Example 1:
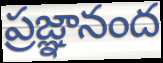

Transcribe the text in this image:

ప్రజ్ఞానంద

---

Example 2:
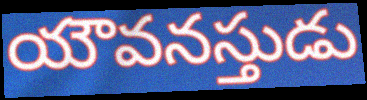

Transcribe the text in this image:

యౌవనస్తుడు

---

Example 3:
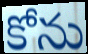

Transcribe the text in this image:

కోను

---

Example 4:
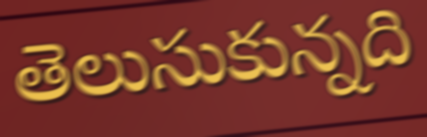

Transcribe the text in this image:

తెలుసుకున్నది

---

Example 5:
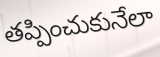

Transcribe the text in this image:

తప్పించుకునేలా